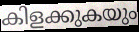
കിളക്കുകയും